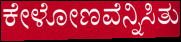
ಕೇಳೋಣವೆನ್ನಿಸಿತು